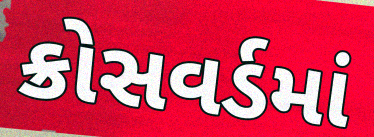
ક્રોસવર્ડમાં